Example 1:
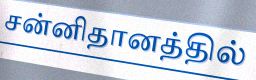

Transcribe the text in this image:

சன்னிதானத்தில்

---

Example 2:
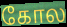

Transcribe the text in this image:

கோல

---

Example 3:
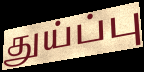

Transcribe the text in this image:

துய்ப்பு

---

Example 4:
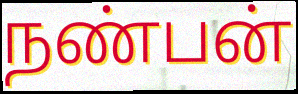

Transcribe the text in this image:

நண்பன்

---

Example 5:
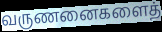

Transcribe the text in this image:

வருணனைகளைத்